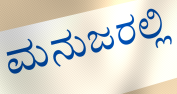
ಮನುಜರಲ್ಲಿ